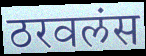
ठरवलंस